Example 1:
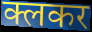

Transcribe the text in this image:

क्लकर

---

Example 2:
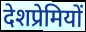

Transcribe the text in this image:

देशप्रेमियों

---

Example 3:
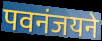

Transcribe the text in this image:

पवनंजयने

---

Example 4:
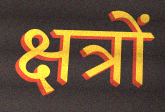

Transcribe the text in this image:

क्षत्रों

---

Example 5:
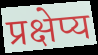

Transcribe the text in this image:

प्रक्षेप्य